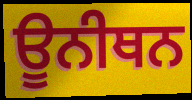
ਊਨੀਥਨ